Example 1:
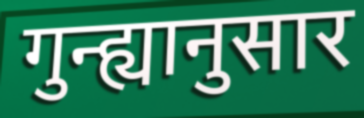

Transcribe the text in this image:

गुन्ह्यानुसार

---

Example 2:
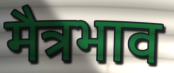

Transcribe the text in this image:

मैत्रभाव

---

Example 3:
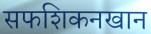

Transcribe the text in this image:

सफशिकनखान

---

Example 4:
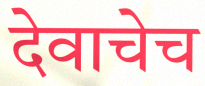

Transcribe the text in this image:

देवाचेच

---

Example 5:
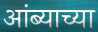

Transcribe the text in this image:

आंब्याच्या